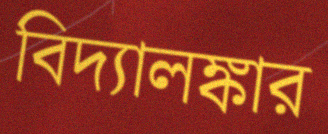
বিদ্যালঙ্কার